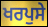
ਖਰਪੁਸੇ